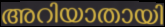
അറിയാതായി